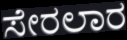
ಸೇರಲಾರ